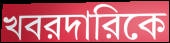
খবরদারিকে